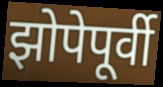
झोपेपूर्वी